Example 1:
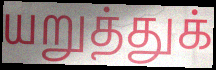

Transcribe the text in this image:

யறுத்துக்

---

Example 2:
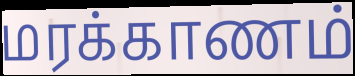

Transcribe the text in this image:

மரக்காணம்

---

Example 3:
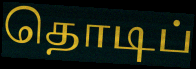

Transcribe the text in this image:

தொடிப்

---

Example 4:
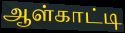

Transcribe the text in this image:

ஆள்காட்டி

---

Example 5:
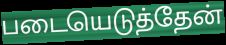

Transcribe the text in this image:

படையெடுத்தேன்